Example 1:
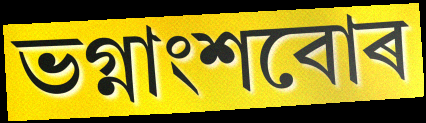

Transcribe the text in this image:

ভগ্নাংশবোৰ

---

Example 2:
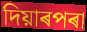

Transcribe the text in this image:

দিয়াৰপৰা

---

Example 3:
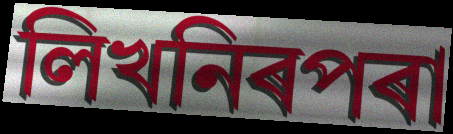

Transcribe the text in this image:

লিখনিৰপৰা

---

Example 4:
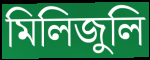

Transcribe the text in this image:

মিলিজুলি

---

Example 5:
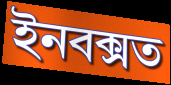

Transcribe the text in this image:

ইনবক্সত